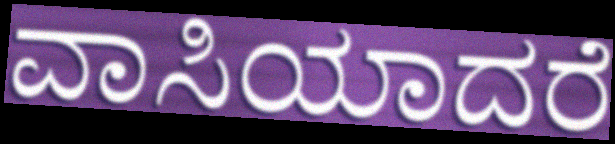
ವಾಸಿಯಾದರೆ